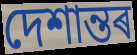
দেশান্তৰ